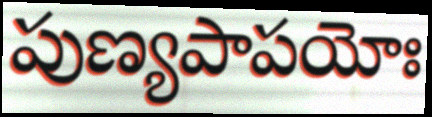
పుణ్యపాపయోః